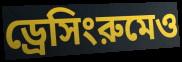
ড্রেসিংরুমেও